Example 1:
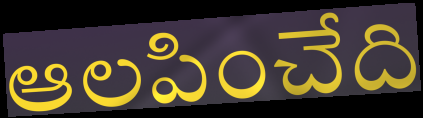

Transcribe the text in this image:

ఆలపించేది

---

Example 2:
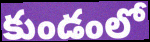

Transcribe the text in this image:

కుండంలో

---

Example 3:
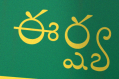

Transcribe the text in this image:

ఈర్ష్య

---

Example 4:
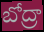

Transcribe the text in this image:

బోద్రా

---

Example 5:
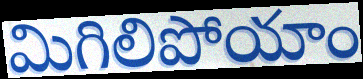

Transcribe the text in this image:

మిగిలిపోయాం